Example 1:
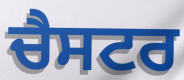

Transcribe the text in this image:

ਚੈਸਟਰ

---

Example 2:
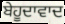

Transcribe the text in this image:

ਬੇਹੂਦਾਵਾਦ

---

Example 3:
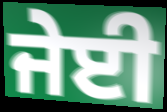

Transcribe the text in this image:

ਜੇਈ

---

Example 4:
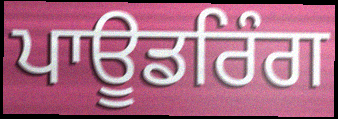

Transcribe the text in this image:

ਪਾਊਡਰਿੰਗ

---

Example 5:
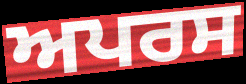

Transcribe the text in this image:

ਅਪਰਸ